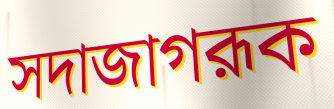
সদাজাগরূক